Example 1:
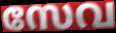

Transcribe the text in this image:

സേവ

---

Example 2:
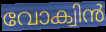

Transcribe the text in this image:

വോക്വിൻ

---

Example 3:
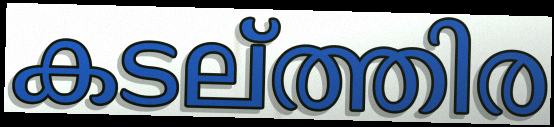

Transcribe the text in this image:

കടല്ത്തിര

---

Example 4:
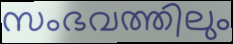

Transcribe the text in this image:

സംഭവത്തിലും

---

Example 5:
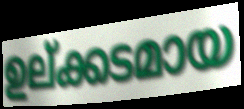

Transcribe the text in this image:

ഉല്ക്കടമായ